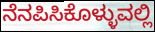
ನೆನಪಿಸಿಕೊಳ್ಳುವಲ್ಲಿ